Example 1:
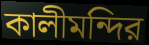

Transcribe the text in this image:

কালীমন্দির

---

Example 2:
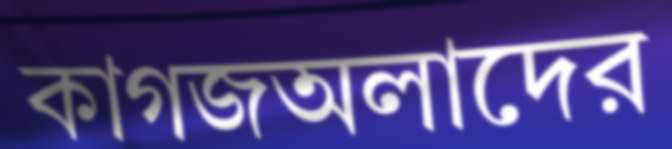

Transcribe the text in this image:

কাগজঅলাদের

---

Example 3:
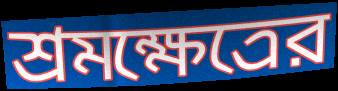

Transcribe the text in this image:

শ্রমক্ষেত্রের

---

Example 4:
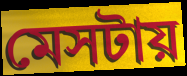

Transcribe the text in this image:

মেসটায়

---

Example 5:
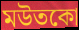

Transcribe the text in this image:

মউতকো